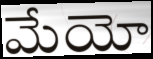
మేయో